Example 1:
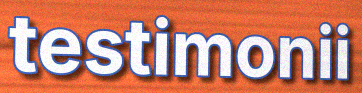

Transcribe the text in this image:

testimonii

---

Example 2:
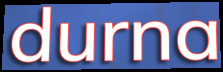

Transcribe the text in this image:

durna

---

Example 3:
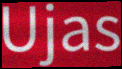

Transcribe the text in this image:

Ujas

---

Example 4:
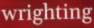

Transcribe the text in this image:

wrighting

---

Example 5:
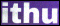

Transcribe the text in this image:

ithu